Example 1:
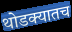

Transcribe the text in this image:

थोडक्यातच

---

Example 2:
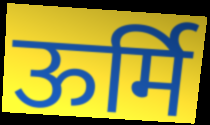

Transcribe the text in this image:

ऊर्मि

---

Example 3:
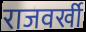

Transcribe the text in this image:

राजवर्खी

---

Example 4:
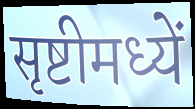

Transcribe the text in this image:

सृष्टीमध्यें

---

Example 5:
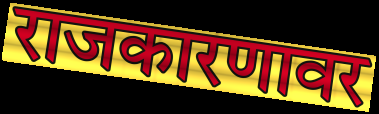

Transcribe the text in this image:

राजकारणावर